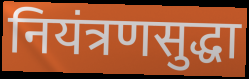
नियंत्रणसुद्धा